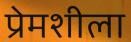
प्रेमशीला